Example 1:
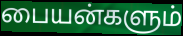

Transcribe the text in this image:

பையன்களும்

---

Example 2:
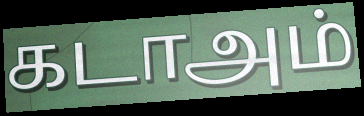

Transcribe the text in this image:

கடாஅம்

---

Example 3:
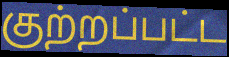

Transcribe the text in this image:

குற்றப்பட்ட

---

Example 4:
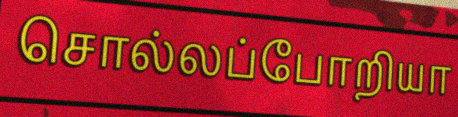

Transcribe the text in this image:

சொல்லப்போறியா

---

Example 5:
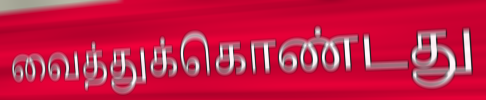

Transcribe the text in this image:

வைத்துக்கொண்டது